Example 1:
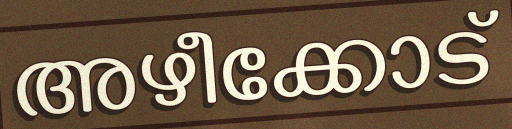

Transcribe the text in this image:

അഴീക്കോട്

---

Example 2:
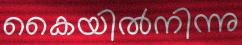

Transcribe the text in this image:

കൈയിൽനിന്നു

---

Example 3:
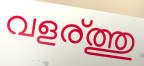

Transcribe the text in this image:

വളര്ത്തു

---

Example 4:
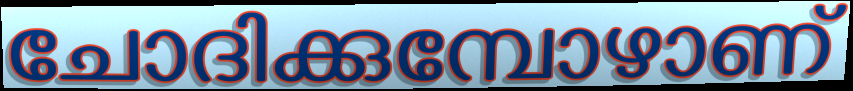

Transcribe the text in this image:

ചോദിക്കുമ്പോഴാണ്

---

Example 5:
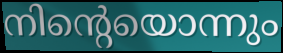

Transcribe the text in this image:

നിന്റെയൊന്നും